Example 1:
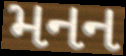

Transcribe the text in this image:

મનન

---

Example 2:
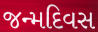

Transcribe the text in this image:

જન્મદિવસ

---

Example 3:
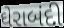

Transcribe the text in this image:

ઘેરાબંદી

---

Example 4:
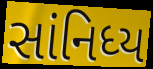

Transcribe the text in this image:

સાંનિધ્ય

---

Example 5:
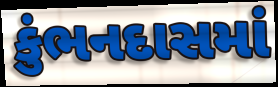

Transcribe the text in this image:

કુંભનદાસમાં